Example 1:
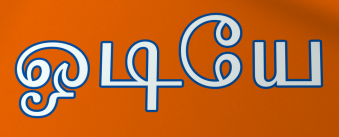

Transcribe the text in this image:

ஓடியே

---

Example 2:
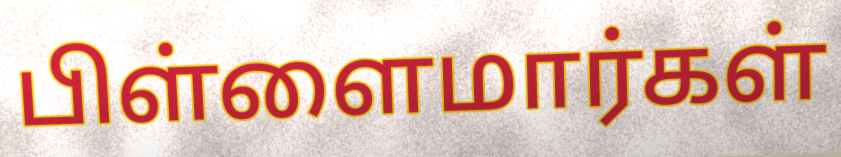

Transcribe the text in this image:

பிள்ளைமார்கள்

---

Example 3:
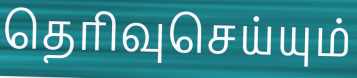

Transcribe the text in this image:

தெரிவுசெய்யும்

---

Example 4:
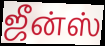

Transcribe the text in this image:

ஜீன்ஸ்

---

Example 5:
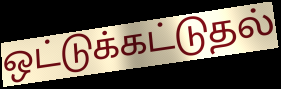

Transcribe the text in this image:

ஒட்டுக்கட்டுதல்